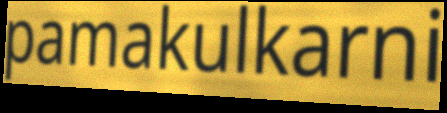
pamakulkarni